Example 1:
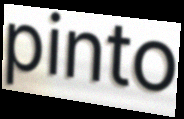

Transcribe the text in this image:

pinto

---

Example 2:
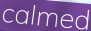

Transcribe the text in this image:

calmed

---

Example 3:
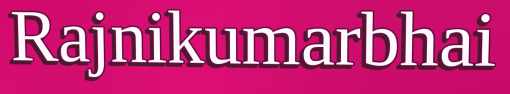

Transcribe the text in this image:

Rajnikumarbhai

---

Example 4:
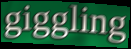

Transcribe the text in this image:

giggling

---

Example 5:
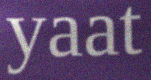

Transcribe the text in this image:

yaat